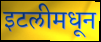
इटलीमधून